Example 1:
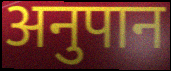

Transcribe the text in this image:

अनुपान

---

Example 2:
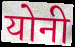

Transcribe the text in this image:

योनी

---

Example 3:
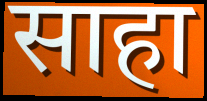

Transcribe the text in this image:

साहा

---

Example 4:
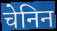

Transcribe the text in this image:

चेनिन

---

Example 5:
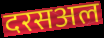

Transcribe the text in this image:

दरसअल